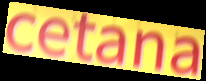
cetana